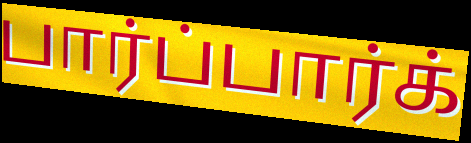
பார்ப்பார்க்